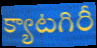
క్యాటగిరీ